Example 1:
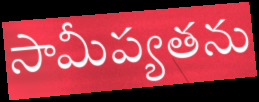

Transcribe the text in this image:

సామీప్యతను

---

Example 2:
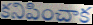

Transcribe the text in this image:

కనిపించాక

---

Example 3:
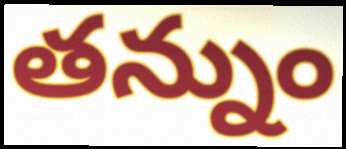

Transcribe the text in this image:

తన్నుం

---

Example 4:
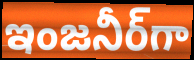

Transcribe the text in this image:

ఇంజనీర్‌గా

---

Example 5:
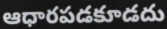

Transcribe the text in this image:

ఆధారపడకూడదు